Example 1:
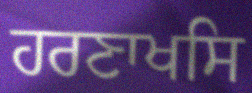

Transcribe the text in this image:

ਹਰਣਾਖਸਿ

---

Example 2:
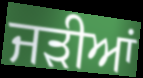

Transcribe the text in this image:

ਜੜੀਆਂ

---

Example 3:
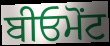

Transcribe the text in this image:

ਬੀਓਮੋਂਟ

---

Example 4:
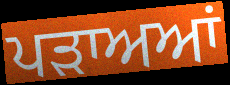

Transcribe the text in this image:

ਪੜਾਅਆਂ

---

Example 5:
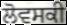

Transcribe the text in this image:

ਲੋਵਸਕੀ